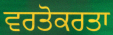
ਵਰਤੋਕਰਤਾ